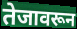
तेजावरून